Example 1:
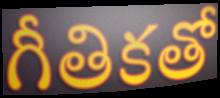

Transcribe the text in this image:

గీతికతో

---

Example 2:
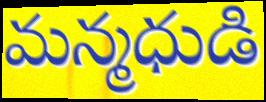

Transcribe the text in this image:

మన్మధుడి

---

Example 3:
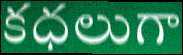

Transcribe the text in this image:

కధలుగా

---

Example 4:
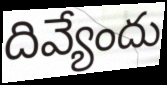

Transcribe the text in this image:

దివ్యేందు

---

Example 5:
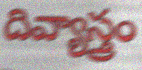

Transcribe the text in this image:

దివ్యాస్త్రం